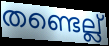
തണ്ടെല്ല്